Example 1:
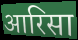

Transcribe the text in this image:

आरिसा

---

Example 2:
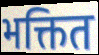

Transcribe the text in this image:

भक्तित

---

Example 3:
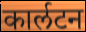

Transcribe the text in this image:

कार्लटन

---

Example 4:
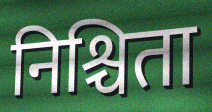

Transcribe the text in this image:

निश्चिता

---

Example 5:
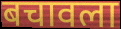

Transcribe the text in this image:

बचावला